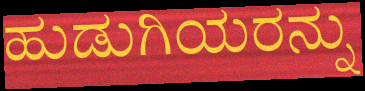
ಹುಡುಗಿಯರನ್ನು